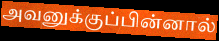
அவனுக்குப்பின்னால்